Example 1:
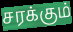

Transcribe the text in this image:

சரக்கும்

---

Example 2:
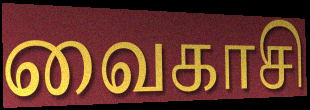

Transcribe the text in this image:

வைகாசி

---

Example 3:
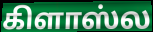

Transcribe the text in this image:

கிளாஸ்ல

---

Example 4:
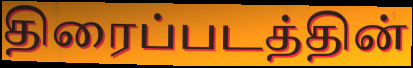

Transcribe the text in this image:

திரைப்படத்தின்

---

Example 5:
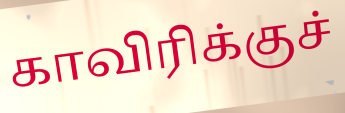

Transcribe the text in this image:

காவிரிக்குச்